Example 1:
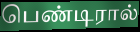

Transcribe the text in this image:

பெண்டிரால்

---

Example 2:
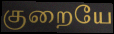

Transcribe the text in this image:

குறையே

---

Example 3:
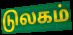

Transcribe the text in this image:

டுலகம்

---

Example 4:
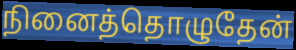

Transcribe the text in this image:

நினைத்தொழுதேன்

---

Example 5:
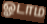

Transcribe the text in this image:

ஓடாம